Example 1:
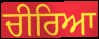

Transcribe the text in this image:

ਚੀਰਿਆ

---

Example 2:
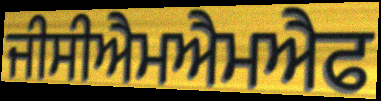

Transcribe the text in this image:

ਜੀਸੀਐਮਐਮਐਫ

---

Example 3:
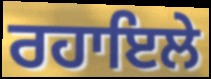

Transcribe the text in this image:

ਰਹਾਇਲੇ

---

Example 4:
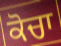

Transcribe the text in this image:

ਕੋਚਾ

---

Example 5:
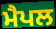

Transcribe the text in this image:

ਮੈਪਲ